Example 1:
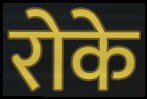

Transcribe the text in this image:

रोके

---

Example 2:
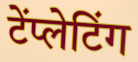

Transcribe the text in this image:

टेंप्लेटिंग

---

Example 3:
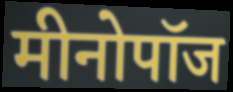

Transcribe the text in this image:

मीनोपॉज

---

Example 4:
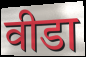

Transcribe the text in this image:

वीडा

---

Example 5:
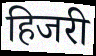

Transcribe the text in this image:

हिजरी